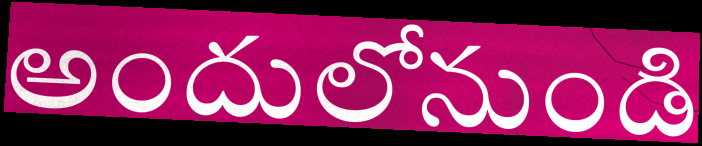
అందులోనుండి